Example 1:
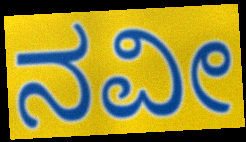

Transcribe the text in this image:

ನವೀ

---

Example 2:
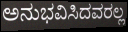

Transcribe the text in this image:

ಅನುಭವಿಸಿದವರಲ್ಲ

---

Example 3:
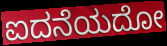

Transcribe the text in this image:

ಐದನೆಯದೋ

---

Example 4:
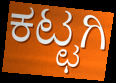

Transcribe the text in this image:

ಕಟ್ಟಗಿ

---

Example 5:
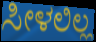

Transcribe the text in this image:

ಸೀಳಲಿಲ್ಲ